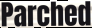
Parched